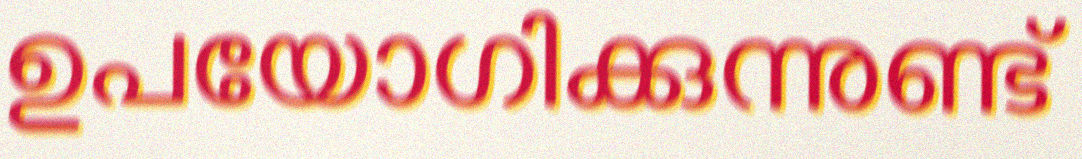
ഉപയോഗിക്കുന്നുണ്ട്